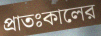
প্রাতঃকালের